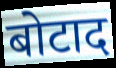
बोटाद